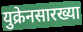
युक्रेनसारख्या